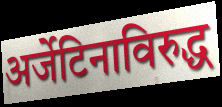
अर्जेटिनाविरुद्ध